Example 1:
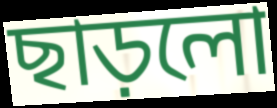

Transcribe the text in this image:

ছাড়লো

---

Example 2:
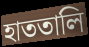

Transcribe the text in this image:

হাততালি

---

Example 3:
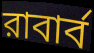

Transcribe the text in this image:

রাবার্ব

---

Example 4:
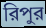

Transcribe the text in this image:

রিপুর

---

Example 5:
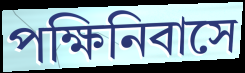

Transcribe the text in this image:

পক্ষিনিবাসে